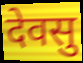
देवसु